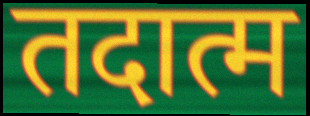
तदात्म